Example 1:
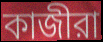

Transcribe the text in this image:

কাজীরা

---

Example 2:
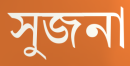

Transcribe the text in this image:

সুজনা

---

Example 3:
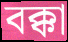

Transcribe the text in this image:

বক্কা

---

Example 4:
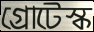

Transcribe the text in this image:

গ্রোটেস্ক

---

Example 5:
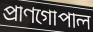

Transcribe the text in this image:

প্রাণগোপাল